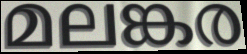
മലങ്കര